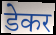
डेकर